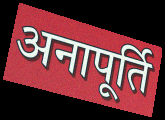
अनापूर्ति